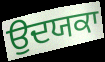
ਉਦਯਕਾ